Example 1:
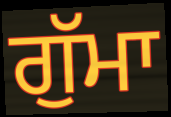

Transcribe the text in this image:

ਗੁੱਮਾ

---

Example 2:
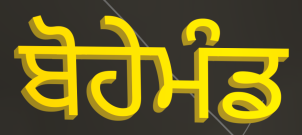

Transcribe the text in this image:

ਬੋਹੇਮੰਡ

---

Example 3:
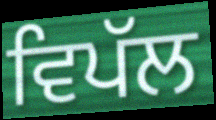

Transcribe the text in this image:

ਵਿਪੱਲ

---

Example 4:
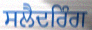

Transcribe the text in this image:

ਸਲੈਦਰਿੰਗ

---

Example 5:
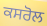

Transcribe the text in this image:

ਕਸਰੋਲ